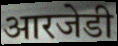
आरजेडी